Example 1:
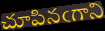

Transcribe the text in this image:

చూపినఁగాని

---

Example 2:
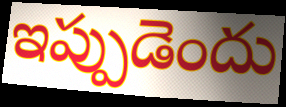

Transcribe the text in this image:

ఇప్పుడెందు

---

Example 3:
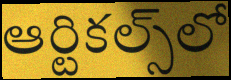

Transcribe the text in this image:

ఆర్టికల్స్‌లో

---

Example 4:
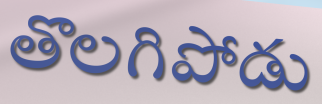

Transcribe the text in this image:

తొలగిపోడు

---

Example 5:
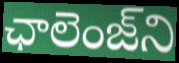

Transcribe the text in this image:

ఛాలెంజ్‌ని